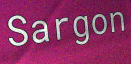
Sargon